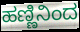
ಹಣ್ಣಿನಿಂದ